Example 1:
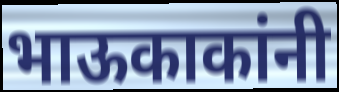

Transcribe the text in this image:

भाऊकाकांनी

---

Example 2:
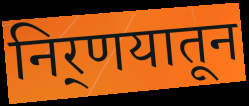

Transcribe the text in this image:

निर्णयातून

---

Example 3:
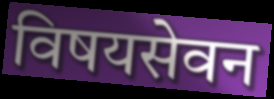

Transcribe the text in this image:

विषयसेवन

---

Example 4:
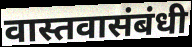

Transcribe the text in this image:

वास्तवासंबंधी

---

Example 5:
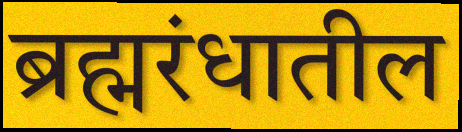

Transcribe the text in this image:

ब्रह्मरंधातील